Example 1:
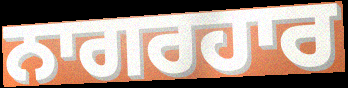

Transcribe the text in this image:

ਨਾਗਰਹਾਰ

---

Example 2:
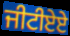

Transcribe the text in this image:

ਜੀਟੀਏਏ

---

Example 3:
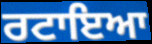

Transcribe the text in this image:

ਰਟਾਇਆ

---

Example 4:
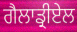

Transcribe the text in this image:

ਗੈਲਾਡ੍ਰੀਏਲ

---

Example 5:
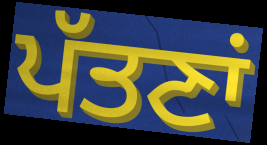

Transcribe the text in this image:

ਪੱਤਣਾਂ